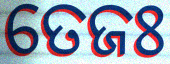
ତେଜଃ